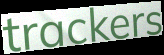
trackers